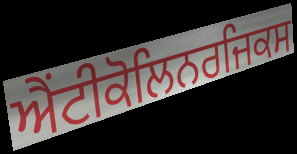
ਐਂਟੀਕੋਲਿਨਰਜਿਕਸ